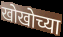
खोखोच्या